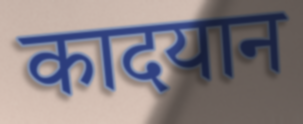
कादयान